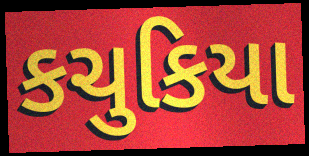
કચુકિયા